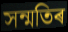
সন্মতিৰ